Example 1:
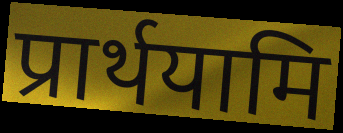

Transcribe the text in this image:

प्रार्थयामि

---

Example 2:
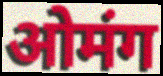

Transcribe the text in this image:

ओमंग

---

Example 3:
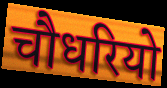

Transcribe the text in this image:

चौधरियो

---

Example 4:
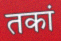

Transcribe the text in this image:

तकां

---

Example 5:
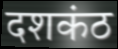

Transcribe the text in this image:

दशकंठ